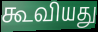
கூவியது